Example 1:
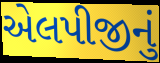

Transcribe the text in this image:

એલપીજીનું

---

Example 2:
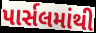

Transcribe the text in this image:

પાર્સલમાંથી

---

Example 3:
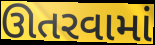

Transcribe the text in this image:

ઊતરવામાં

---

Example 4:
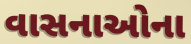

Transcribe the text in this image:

વાસનાઓના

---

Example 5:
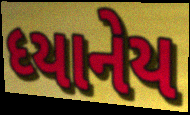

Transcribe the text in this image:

ધ્યાનેય